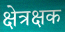
क्षेत्रक्षक